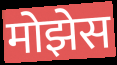
मोझेस